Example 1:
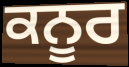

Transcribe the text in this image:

ਕਨੂਰ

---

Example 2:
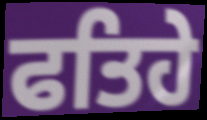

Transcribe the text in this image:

ਫਤਿਹੇ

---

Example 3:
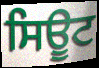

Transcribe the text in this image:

ਸਿਊਟ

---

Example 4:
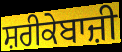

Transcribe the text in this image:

ਸ਼ਰੀਕੇਬਾਜ਼ੀ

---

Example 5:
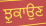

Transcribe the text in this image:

ਝੁਕਾਉਣ